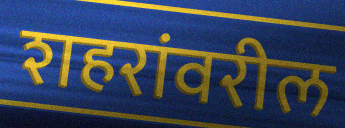
शहरांवरील